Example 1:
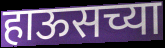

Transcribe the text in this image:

हाऊसच्या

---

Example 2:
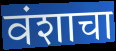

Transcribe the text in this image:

वंशाचा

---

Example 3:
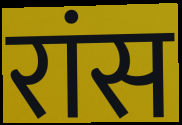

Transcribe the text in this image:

रांस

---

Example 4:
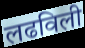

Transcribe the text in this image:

लढविली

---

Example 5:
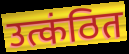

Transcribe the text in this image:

उत्कंठित